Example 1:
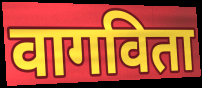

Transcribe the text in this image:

वागविता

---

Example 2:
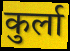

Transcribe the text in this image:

कुर्ला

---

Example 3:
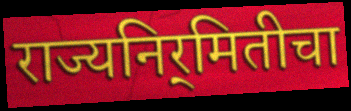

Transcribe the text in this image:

राज्यनिर्मितीचा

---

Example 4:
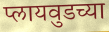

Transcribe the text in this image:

प्लायवुडच्या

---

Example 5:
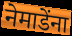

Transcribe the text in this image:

नेमाडेंना